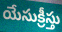
యేసుక్రీస్తు